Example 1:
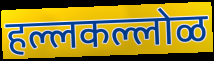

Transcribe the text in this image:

हल्लकल्लोळ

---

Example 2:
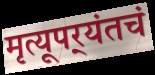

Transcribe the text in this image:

मृत्यूपर्यंतचं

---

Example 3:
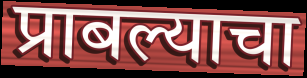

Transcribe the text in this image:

प्राबल्याचा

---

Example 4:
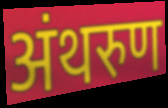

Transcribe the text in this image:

अंथरुण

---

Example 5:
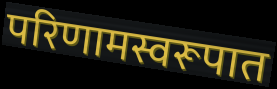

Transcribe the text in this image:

परिणामस्वरूपात